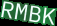
RMBK